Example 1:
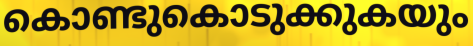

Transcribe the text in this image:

കൊണ്ടുകൊടുക്കുകയും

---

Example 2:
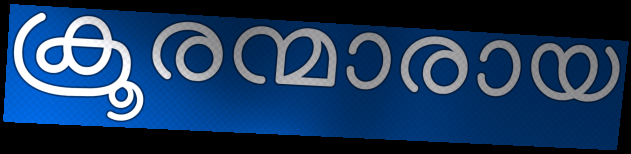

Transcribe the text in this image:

ക്രൂരന്മാരായ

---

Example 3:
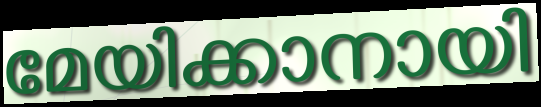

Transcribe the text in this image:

മേയിക്കാനായി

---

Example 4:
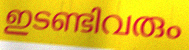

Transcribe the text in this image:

ഇടണ്ടിവരും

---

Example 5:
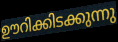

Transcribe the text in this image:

ഊറിക്കിടക്കുന്നു